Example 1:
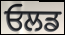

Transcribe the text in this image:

ਓਲਡ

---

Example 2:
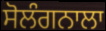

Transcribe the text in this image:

ਸੋਲੰਗਨਾਲਾ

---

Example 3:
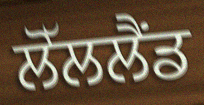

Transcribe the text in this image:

ਲੋੱਲਲੈਂਡ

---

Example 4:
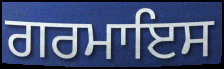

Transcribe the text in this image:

ਗਰਮਾਇਸ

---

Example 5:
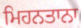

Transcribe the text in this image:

ਮਿਹਨਤਾਨਾ